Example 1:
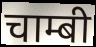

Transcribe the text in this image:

चाम्बी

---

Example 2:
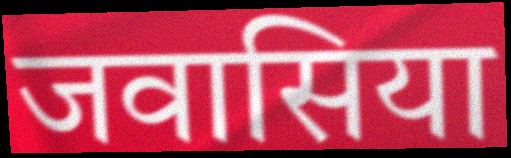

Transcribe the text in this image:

जवासिया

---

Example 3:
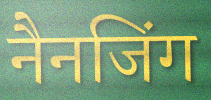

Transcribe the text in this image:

नैनजिंग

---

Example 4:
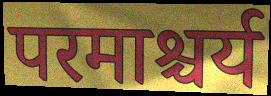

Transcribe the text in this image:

परमाश्चर्य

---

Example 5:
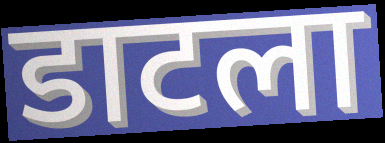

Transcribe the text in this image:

डाटला